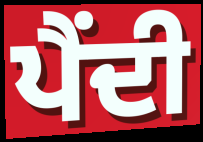
ਪੈਂਦੀ